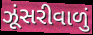
ઝૂંસરીવાળું